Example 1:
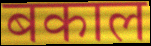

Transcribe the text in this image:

बकाल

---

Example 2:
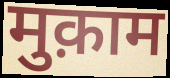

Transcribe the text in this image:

मुक़ाम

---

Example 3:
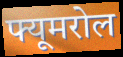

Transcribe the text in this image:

फ्यूमरोल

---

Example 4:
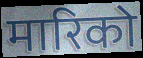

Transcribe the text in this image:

मारिको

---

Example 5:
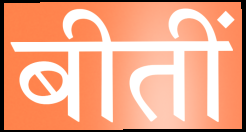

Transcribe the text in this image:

बीतीं